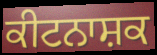
ਕੀਟਨਾਸ਼ਕ